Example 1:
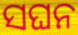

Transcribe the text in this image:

ସଘନ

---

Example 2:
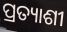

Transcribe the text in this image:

ପ୍ରତ୍ୟାଶୀ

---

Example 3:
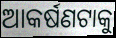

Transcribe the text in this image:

ଆକର୍ଷଣଟାକୁ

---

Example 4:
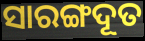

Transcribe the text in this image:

ସାରଙ୍ଗଦୂତ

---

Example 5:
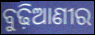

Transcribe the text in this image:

ବୁଢ଼ିଆଣୀର